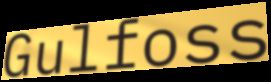
Gulfoss